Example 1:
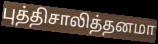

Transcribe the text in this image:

புத்திசாலித்தனமா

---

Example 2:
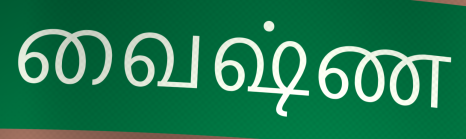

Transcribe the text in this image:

வைஷ்ண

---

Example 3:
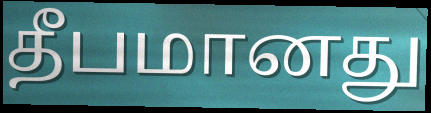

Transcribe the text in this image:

தீபமானது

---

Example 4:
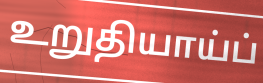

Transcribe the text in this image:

உறுதியாய்ப்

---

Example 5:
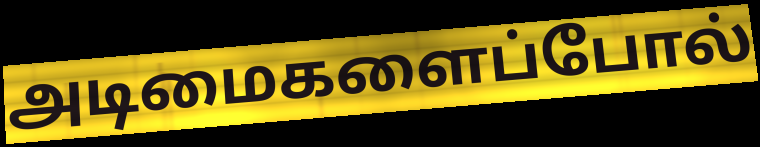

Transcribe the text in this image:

அடிமைகளைப்போல்